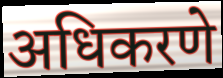
अधिकरणे